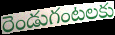
రెండుగంటలకు